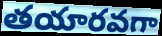
తయారవగా